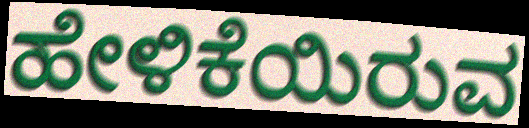
ಹೇಳಿಕೆಯಿರುವ